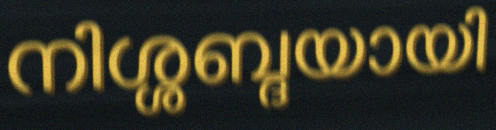
നിശ്ശബ്ദയായി